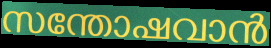
സന്തോഷവാൻ